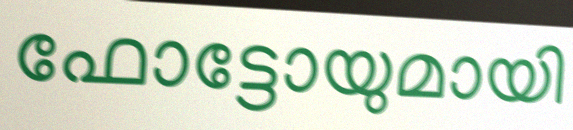
ഫോട്ടോയുമായി